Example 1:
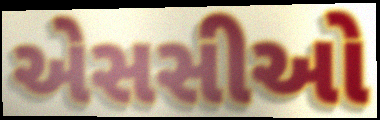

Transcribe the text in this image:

એસસીઓ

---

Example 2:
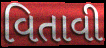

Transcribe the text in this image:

વિતાવી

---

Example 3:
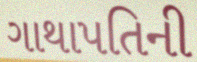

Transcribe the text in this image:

ગાથાપતિની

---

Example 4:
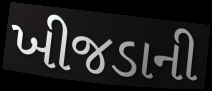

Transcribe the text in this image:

ખીજડાની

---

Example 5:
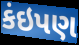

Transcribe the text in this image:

કંઇપણ